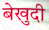
बेखुदी